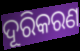
ଦୂରିକରଣ